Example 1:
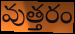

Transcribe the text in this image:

వుత్తరం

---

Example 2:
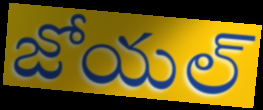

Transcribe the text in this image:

జోయల్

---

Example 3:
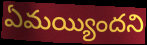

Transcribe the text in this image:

ఏమయ్యిందని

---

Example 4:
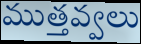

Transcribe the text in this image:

ముత్తవ్వలు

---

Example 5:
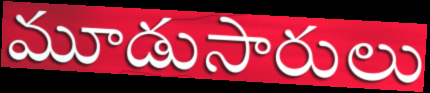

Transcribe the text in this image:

మూడుసారులు